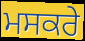
ਮਸਕਰੇ